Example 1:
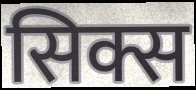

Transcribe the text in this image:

सिक्स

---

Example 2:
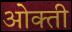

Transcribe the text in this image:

ओक्ती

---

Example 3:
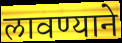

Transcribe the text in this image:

लावण्याने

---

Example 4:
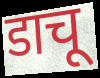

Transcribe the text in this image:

डाचू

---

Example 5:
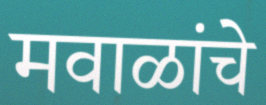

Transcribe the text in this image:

मवाळांचे